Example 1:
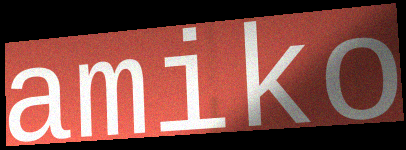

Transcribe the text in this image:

amiko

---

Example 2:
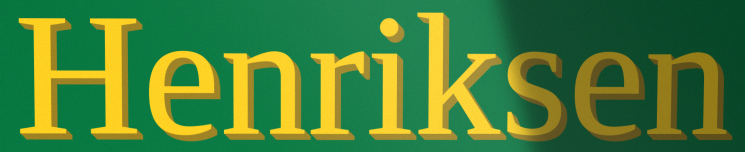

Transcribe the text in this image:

Henriksen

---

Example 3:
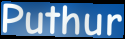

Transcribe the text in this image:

Puthur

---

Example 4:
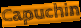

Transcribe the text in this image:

Capuchin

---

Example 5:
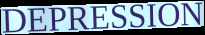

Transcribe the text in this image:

DEPRESSION